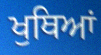
ਖੁਥਿਆਂ